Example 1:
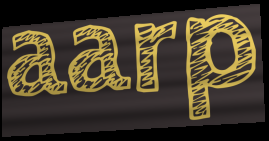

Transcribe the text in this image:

aarp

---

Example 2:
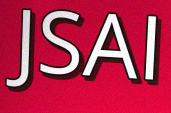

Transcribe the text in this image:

JSAI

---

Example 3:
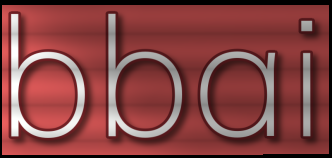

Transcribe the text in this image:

bbai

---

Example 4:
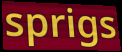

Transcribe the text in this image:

sprigs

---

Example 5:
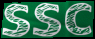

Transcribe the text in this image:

ssc